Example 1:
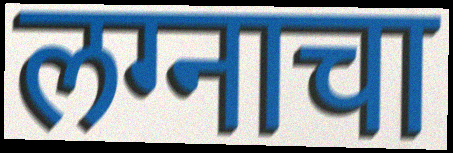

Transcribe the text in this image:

लग्नाचा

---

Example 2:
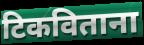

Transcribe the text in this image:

टिकविताना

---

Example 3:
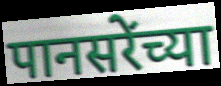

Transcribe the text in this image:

पानसरेंच्या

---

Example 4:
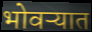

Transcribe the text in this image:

भोवऱ्यात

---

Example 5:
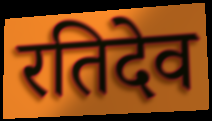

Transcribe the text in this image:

रतिदेव